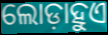
ଲୋଡ଼ାହୁଏ